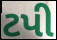
ટપી